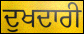
ਦੁਖਦਾਰੀ